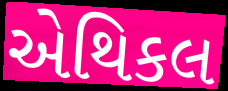
એથિકલ